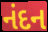
નંદન